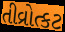
તીવ્રોત્કટ